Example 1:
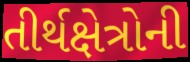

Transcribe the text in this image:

તીર્થક્ષેત્રોની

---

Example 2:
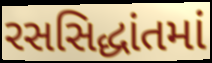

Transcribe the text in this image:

રસસિદ્ધાંતમાં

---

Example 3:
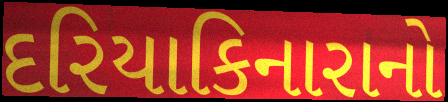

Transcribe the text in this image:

દરિયાકિનારાનો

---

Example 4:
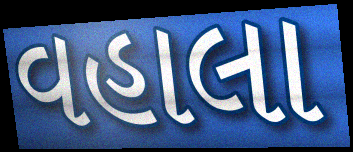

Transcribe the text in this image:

વહાલા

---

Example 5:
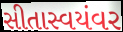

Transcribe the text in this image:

સીતાસ્વયંવર